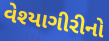
વેશ્યાગીરીનો